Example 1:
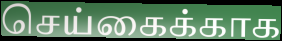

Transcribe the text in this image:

செய்கைக்காக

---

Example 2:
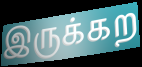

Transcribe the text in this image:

இருக்கற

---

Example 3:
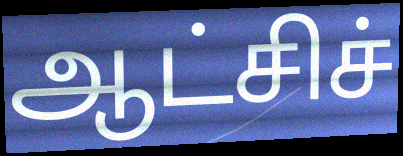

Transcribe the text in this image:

ஆட்சிச்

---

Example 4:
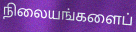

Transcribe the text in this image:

நிலையங்களைப்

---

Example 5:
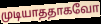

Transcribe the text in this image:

முடியாததாகவோ